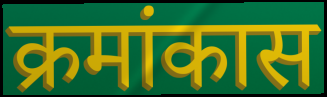
क्रमांकास